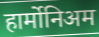
हार्मोनिअम